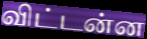
விட்டன்ன